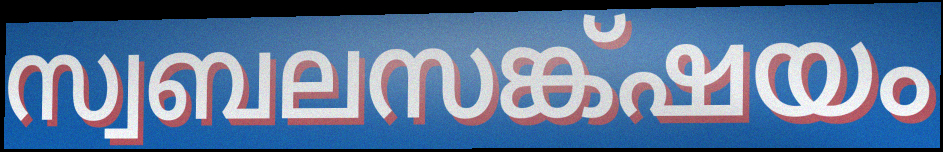
സ്വബലസങ്ക്ഷയം